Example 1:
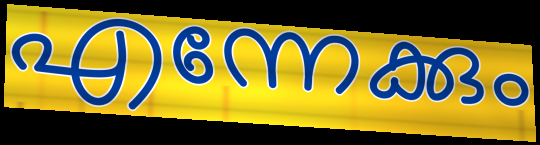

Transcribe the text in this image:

എന്നേക്കും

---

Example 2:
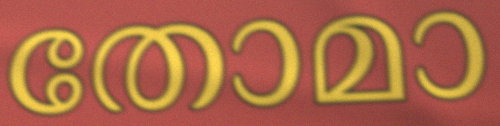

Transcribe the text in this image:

തോമാ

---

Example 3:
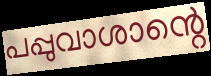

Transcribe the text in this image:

പപ്പുവാശാന്റെ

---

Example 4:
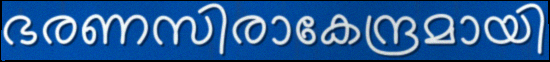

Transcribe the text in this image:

ഭരണസിരാകേന്ദ്രമായി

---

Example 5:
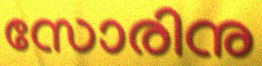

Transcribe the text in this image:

സോരിനു